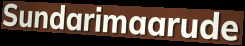
Sundarimaarude